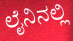
ಲೈನಿನಲ್ಲಿ